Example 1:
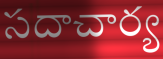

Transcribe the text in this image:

సదాచార్య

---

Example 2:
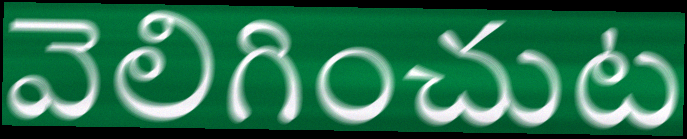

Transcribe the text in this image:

వెలిగించుట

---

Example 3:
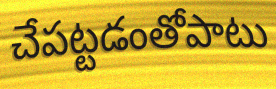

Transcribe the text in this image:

చేపట్టడంతోపాటు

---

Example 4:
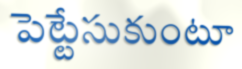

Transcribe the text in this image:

పెట్టేసుకుంటూ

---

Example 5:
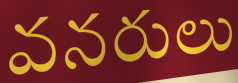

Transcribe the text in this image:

వనరులు